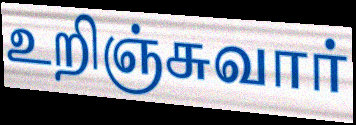
உறிஞ்சுவார்